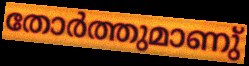
തോർത്തുമാണു്